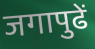
जगापुढें